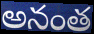
అనంత